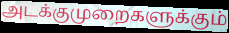
அடக்குமுறைகளுக்கும்